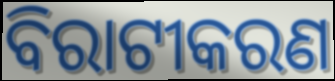
ବିରାଟୀକରଣ